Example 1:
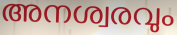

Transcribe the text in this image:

അനശ്വരവും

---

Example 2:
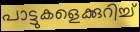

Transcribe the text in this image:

പാട്ടുകളെക്കുറിച്ച്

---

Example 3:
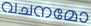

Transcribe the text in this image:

വചനമോ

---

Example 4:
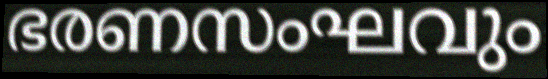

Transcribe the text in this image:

ഭരണസംഘവും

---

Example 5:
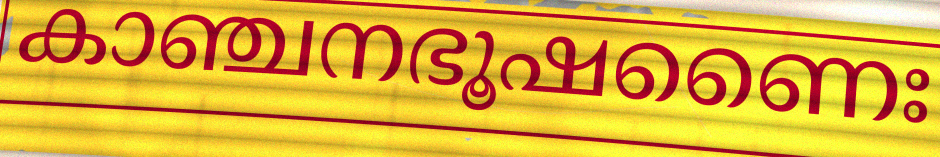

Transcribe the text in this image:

കാഞ്ചനഭൂഷണൈഃ